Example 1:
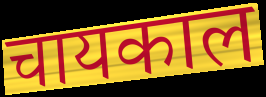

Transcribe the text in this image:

चायकाल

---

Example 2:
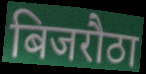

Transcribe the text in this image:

बिजरौठा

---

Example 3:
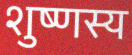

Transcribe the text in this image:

शुष्णस्य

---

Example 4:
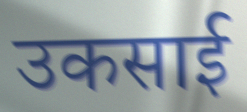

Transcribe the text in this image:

उकसाई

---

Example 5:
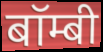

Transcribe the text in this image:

बॉम्बी